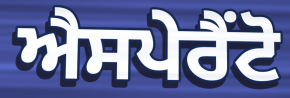
ਐਸਪੇਰੈਂਟੋ